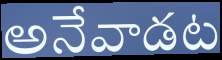
అనేవాడట